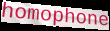
homophone